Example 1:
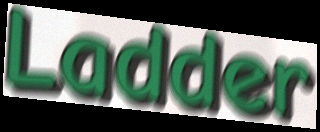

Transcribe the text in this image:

Ladder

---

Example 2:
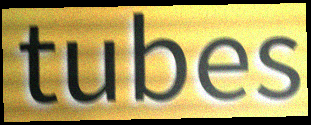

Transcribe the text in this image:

tubes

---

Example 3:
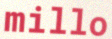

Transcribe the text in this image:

millo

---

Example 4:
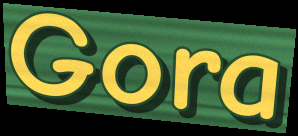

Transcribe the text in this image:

Gora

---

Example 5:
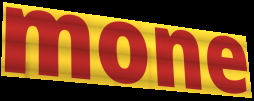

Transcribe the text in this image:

mone